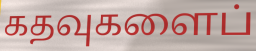
கதவுகளைப்